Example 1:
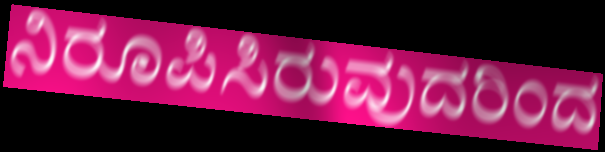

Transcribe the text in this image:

ನಿರೂಪಿಸಿರುವುದರಿಂದ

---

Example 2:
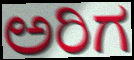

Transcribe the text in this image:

ಅರಿಗ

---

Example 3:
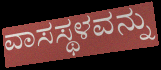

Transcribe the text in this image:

ವಾಸಸ್ಥಳವನ್ನು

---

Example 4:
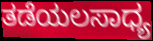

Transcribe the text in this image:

ತಡೆಯಲಸಾಧ್ಯ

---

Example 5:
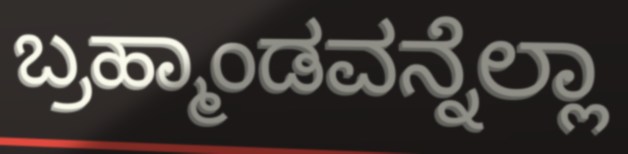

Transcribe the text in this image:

ಬ್ರಹ್ಮಾಂಡವನ್ನೆಲ್ಲಾ